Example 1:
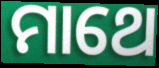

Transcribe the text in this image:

ମାଥେ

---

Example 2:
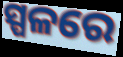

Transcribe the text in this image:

ସ୍ପଳରେ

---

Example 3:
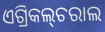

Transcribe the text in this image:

ଏଗ୍ରିକଲ୍‌ଚରାଲ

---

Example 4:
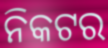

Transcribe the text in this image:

ନିକଟର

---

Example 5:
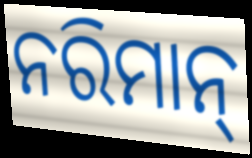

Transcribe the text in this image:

ନରିମାନ୍